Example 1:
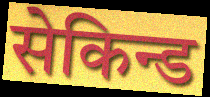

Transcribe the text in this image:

सेकिन्ड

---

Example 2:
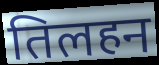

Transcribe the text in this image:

तिलहन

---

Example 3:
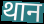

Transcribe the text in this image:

थान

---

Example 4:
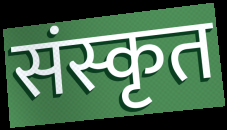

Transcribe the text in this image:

संस्‍कृत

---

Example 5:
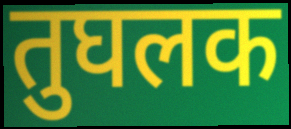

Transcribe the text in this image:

तुघलक